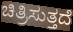
ಚಿತ್ರಿಸುತ್ತದೆ